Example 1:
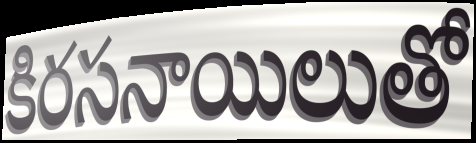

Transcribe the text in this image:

కిరసనాయిలుతో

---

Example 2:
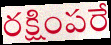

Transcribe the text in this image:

రక్షింపరే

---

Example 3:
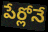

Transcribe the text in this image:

పేర్లోనే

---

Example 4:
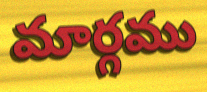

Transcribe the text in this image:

మార్గము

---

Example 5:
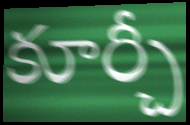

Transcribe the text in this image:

కూర్చీ